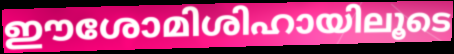
ഈശോമിശിഹായിലൂടെ